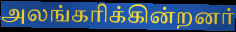
அலங்கரிக்கின்றனர்